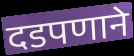
दडपणाने